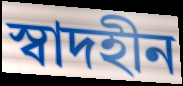
স্বাদহীন